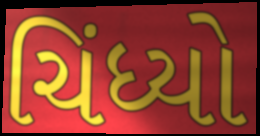
ચિંધ્યો